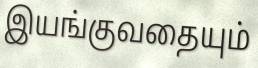
இயங்குவதையும்